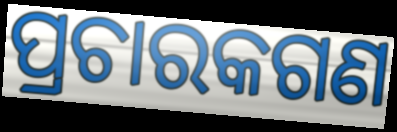
ପ୍ରଚାରକଗଣ